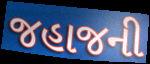
જહાજની